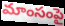
మాంసంపై